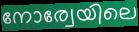
നോര്വേയിലെ